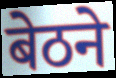
बेठने